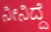
ನೀನಿದ್ದೆ